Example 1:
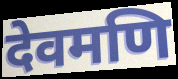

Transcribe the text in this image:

देवमणि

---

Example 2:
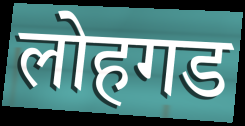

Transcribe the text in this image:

लोहगड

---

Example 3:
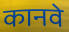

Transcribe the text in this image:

कानवे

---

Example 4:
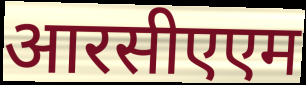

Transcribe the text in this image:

आरसीएएम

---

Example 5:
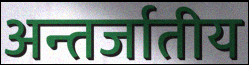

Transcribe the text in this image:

अन्तर्जातीय